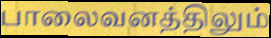
பாலைவனத்திலும்